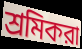
শ্রমিকরা